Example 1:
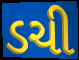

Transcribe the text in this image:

ડચી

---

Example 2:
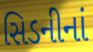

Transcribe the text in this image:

સિડનીનાં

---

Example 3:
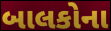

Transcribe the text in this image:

બાલકોના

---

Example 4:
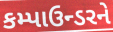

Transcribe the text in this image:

કમ્પાઉન્ડરને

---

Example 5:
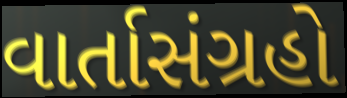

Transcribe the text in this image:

વાર્તાસંગ્રહો